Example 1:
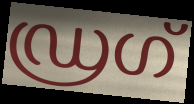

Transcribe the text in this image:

ഡ്രഗ്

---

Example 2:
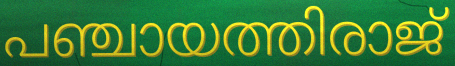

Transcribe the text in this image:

പഞ്ചായത്തിരാജ്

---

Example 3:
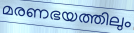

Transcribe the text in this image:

മരണഭയത്തിലും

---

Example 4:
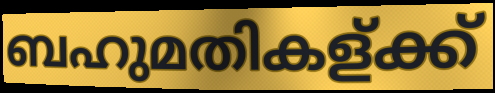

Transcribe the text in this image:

ബഹുമതികള്ക്ക്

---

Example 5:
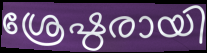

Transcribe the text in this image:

ശ്രേഷ്ഠരായി